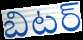
బిటర్